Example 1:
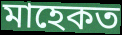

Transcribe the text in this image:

মাহেকত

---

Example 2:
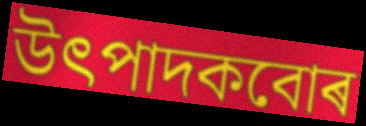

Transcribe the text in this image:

উৎপাদকবোৰ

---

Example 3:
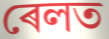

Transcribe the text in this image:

ৰেলত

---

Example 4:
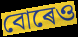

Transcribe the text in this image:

বোৰেও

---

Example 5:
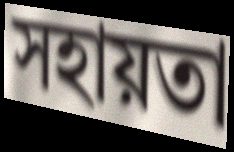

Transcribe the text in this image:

সহায়তা